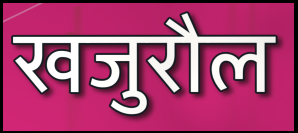
खजुरौल